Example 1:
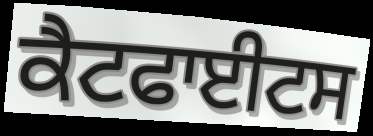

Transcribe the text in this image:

ਕੈਟਫਾਈਟਸ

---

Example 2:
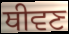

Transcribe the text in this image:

ਥੀਵਣ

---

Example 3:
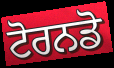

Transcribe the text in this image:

ਟੋਰਨਡੋ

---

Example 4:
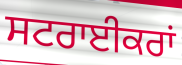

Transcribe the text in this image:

ਸਟਰਾਈਕਰਾਂ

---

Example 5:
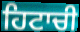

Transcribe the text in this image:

ਹਿਟਾਚੀ